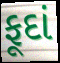
ફૂદાં